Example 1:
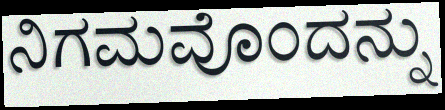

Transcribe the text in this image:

ನಿಗಮವೊಂದನ್ನು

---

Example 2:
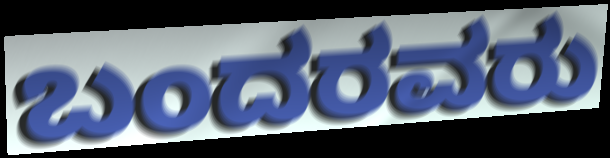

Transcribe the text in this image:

ಬಂದರವರು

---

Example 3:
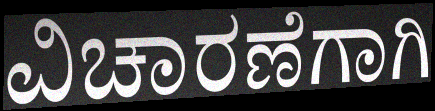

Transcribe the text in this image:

ವಿಚಾರಣೆಗಾಗಿ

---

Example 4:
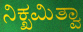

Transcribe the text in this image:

ನಿಕ್ಖಮಿತ್ವಾ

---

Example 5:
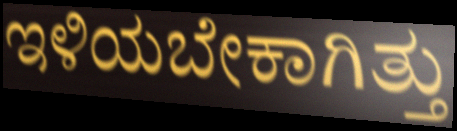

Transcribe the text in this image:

ಇಳಿಯಬೇಕಾಗಿತ್ತು